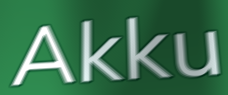
Akku